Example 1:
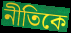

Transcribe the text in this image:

নীতিকে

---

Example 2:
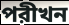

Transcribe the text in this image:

পরীখন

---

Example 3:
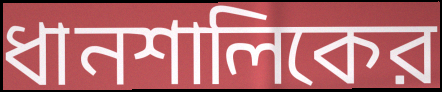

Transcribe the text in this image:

ধানশালিকের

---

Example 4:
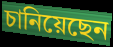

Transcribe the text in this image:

চানিয়েছেন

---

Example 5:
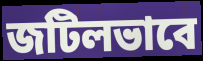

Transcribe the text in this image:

জটিলভাবে